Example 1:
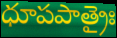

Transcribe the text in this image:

ధూపపాత్రైః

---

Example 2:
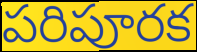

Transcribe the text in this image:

పరిపూరక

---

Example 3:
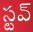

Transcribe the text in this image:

స్టవ్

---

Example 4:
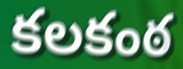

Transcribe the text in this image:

కలకంఠ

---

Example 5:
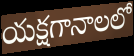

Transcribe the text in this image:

యక్షగానాలలో